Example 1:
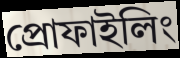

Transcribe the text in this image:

প্রোফাইলিং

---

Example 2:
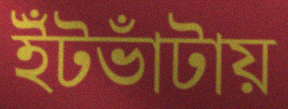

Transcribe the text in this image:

ইঁটভাঁটায়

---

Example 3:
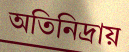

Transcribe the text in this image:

অতিনিদ্রায়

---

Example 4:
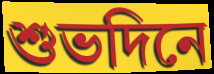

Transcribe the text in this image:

শুভদিনে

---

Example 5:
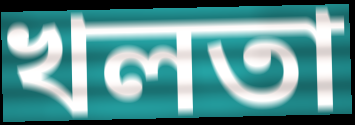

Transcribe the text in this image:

খলতা